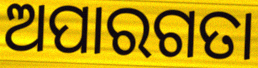
ଅପାରଗତା